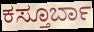
ಕಸ್ತೂರ್ಬಾ